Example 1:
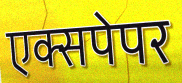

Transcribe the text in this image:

एक्सपेपर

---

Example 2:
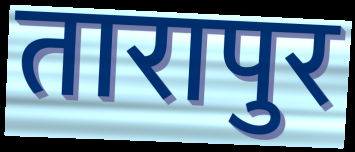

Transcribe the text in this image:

तारापुर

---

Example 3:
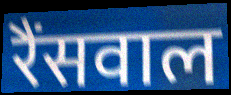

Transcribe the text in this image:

रैंसवाल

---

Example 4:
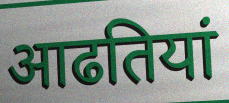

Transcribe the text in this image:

आढतियां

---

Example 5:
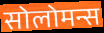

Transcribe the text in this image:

सोलोमन्स